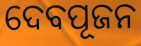
ଦେବପୂଜନ